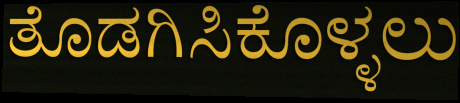
ತೊಡಗಿಸಿಕೊಳ್ಳಲು